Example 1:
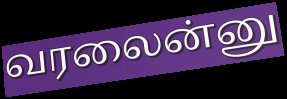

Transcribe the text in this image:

வரலைன்னு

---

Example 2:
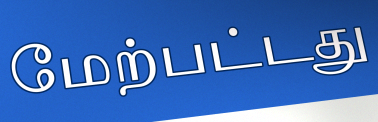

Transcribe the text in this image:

மேற்பட்டது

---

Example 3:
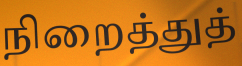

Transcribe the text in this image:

நிறைத்துத்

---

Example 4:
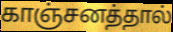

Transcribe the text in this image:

காஞ்சனத்தால்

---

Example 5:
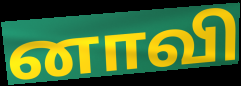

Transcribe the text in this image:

னாவி